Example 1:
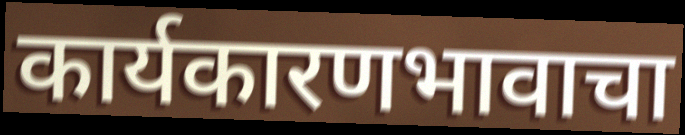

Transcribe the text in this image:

कार्यकारणभावाचा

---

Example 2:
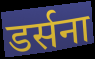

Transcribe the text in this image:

डर्सना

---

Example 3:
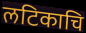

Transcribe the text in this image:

लटिकाचि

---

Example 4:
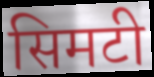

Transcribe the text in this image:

सिमटी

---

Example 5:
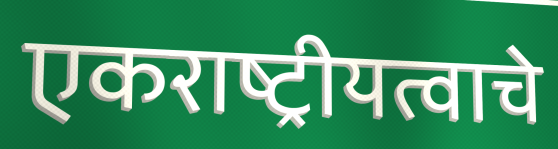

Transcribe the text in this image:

एकराष्ट्रीयत्वाचे